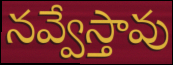
నవ్వేస్తావు